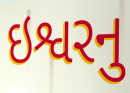
ઇશ્વરનુ